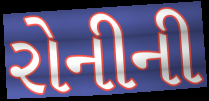
રોનીની